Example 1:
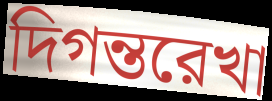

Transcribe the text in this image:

দিগন্তরেখা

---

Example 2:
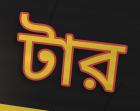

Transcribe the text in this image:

টার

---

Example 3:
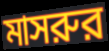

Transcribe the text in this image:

মাসরুর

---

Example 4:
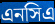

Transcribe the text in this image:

এনসিএ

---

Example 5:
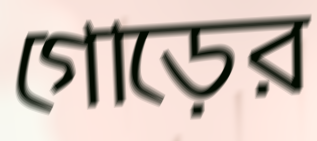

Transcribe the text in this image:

গোড়ের